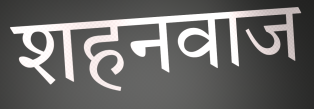
शहनवाज